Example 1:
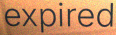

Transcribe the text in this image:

expired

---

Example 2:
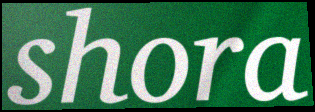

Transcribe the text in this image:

shora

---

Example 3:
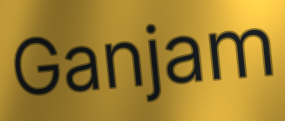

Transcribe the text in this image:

Ganjam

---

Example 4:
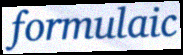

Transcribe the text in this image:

formulaic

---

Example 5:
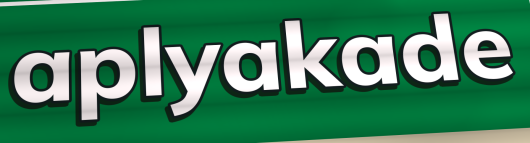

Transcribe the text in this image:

aplyakade